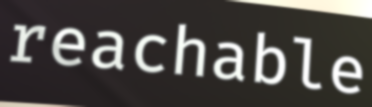
reachable